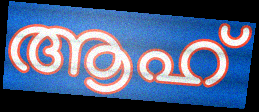
ആഹ്